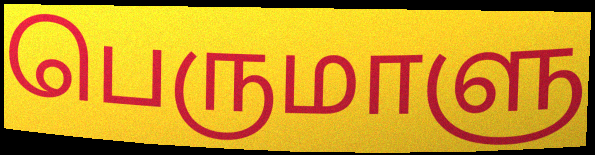
பெருமாளு